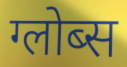
ग्लोब्स